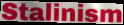
Stalinism